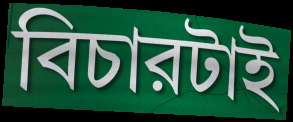
বিচারটাই